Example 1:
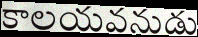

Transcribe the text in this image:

కాలయవనుడు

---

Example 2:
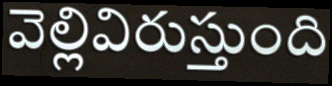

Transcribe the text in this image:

వెల్లివిరుస్తుంది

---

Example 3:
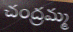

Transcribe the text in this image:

చంద్రమ్మ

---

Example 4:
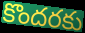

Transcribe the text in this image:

కొందరకు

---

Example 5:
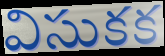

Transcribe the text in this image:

విసుకక